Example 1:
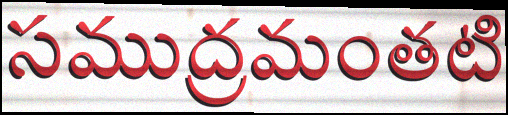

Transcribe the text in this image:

సముద్రమంతటి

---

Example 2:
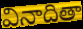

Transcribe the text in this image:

వినాదితా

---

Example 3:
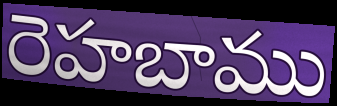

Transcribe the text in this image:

రెహబాము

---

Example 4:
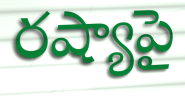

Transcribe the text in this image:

రష్యాపై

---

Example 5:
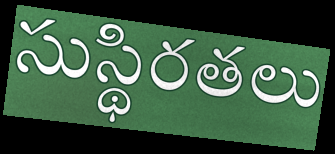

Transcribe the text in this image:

సుస్థిరతలు